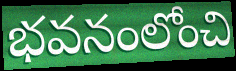
భవనంలోంచి